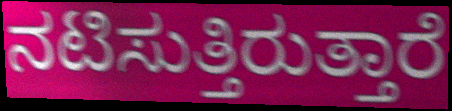
ನಟಿಸುತ್ತಿರುತ್ತಾರೆ